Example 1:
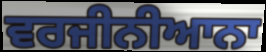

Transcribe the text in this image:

ਵਰਜੀਨੀਆਨਾ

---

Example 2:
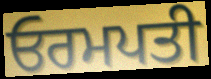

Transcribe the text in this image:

ਓਰਮਪਤੀ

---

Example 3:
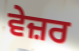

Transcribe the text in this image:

ਵੇਜ਼ਰ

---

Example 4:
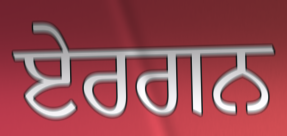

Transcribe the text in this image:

ਏਰਗਨ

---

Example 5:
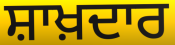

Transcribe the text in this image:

ਸ਼ਾਖ਼ਦਾਰ